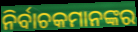
ନିର୍ବାଚକମାନଙ୍କର